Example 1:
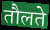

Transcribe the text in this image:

तौलते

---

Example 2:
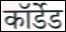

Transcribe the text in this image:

कॉर्डेड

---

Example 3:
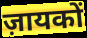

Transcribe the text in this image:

ज़ायकों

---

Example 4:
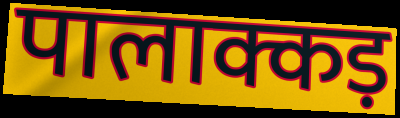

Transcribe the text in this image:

पालाक्कड़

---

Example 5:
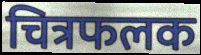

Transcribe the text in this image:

चित्रफलक